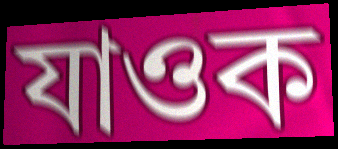
যাওক